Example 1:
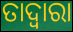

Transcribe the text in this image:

ତାଦ୍ବାରା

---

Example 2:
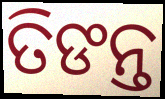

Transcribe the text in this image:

ତିଙନ୍ତ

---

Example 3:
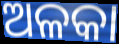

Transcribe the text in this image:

ଅଳକା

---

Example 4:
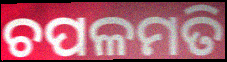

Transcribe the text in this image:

ଚପଳମତି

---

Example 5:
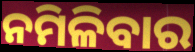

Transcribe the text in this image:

ନମିଳିବାର